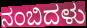
ನಂಬಿದಳು